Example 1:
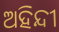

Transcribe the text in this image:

ଅହିନ୍ଦୀ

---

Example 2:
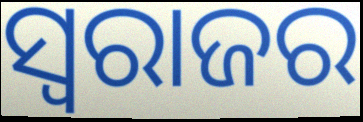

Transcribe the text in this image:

ସ୍ୱରାଜର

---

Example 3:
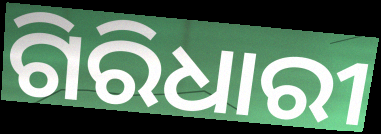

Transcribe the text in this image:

ଗିରିଧାରୀ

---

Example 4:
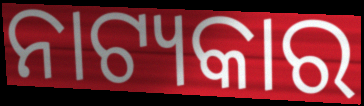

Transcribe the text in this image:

ନାଟ୍ୟକାର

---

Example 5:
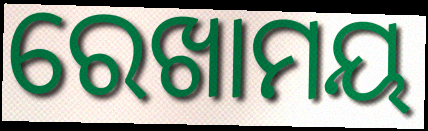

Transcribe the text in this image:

ରେଖାମୟ